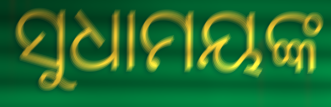
ସୁଧାମୟଙ୍କ